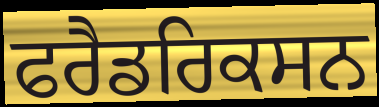
ਫਰੈਡਰਿਕਸਨ